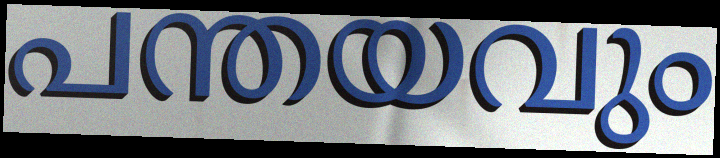
പന്തയവും